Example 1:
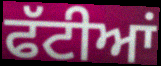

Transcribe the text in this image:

ਫੱਟੀਆਂ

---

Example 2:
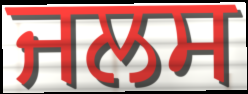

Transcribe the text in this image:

ਜਲਸ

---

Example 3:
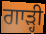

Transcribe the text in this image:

ਗਾੜ੍ਹੀ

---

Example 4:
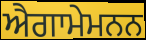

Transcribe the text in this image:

ਐਗਾਮੇਮਨਨ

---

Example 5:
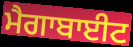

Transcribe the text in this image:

ਮੈਗਾਬਾਈਟ